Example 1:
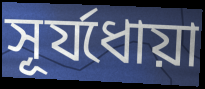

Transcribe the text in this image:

সূর্যধোয়া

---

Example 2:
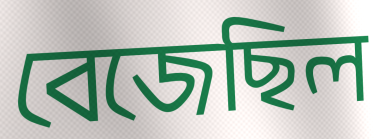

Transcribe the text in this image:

বেজেছিল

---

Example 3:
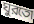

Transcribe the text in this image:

ঘুরতো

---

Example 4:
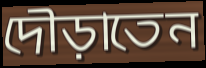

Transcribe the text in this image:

দৌড়াতেন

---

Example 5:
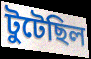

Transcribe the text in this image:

টুটেছিল